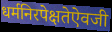
धर्मनिरपेक्षतेऐवजी